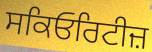
ਸਕਿਓਰਿਟੀਜ਼